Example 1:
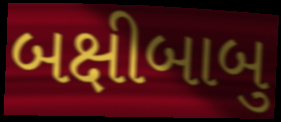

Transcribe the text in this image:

બક્ષીબાબુ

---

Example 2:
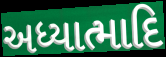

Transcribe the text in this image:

અધ્યાત્માદિ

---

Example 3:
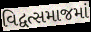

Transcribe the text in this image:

વિદ્વત્સમાજમાં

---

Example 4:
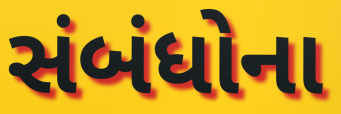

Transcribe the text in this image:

સંબંધોના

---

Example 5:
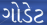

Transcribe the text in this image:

ગોડેટ